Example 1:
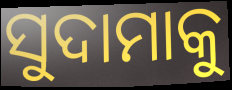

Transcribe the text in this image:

ସୁଦାମାକୁ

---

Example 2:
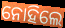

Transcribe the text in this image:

ନୋହିଲେ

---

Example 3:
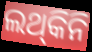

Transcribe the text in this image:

ଲଥ୍‌କିନି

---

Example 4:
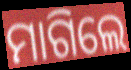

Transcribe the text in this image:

ମାଗିଲେ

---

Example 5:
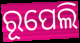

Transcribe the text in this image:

ରୂପେଲି